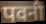
पवनी